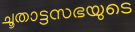
ചൂതാട്ടസഭയുടെ